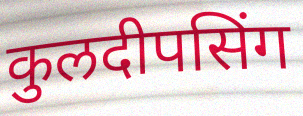
कुलदीपसिंग